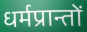
धर्मप्रान्तों